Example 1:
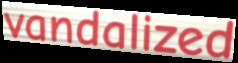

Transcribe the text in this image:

vandalized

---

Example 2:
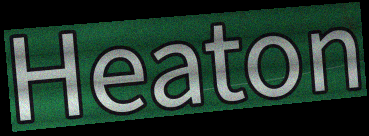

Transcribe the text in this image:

Heaton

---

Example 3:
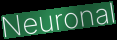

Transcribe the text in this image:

Neuronal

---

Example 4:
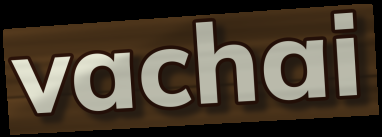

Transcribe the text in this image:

vachai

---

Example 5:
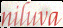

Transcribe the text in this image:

niluva